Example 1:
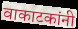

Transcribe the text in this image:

वाकाटकांनी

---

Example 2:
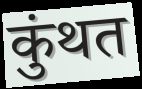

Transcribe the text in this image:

कुंथत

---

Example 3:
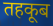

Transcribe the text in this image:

तहकूब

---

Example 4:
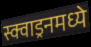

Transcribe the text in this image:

स्क्वाड्रनमध्ये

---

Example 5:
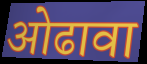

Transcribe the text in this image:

ओढावा